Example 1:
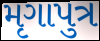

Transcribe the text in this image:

મૃગાપુત્ર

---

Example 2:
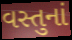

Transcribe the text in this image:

વસ્તુનાં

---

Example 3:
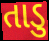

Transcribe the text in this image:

તાડુ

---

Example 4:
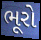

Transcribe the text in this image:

ભૂરો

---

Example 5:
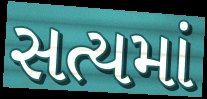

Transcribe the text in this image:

સત્યમાં